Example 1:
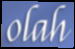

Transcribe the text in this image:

olah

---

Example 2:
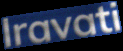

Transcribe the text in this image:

Iravati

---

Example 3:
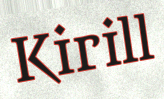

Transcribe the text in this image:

Kirill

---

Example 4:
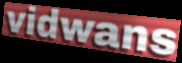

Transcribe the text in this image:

vidwans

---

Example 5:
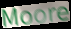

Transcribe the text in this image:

Moore